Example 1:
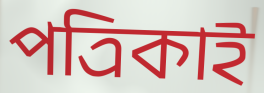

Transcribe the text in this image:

পত্রিকাই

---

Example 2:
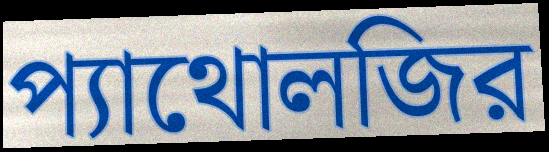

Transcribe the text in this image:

প্যাথোলজির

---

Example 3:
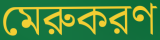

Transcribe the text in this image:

মেরুকরণ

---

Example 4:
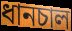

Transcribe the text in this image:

ধানচাল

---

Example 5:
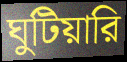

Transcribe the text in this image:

ঘুটিয়ারি